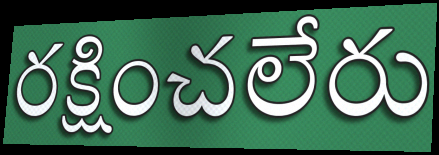
రక్షించలేరు